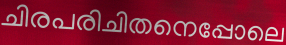
ചിരപരിചിതനെപ്പോലെ